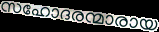
സഹോദരന്മാരായ